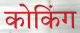
कोकिंग